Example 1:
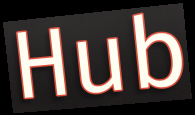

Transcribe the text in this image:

Hub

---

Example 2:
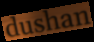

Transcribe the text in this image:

dushan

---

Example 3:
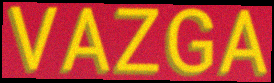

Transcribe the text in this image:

VAZGA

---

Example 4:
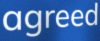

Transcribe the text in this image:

agreed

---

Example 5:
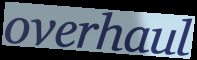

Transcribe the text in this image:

overhaul